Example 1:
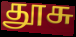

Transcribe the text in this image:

தூசு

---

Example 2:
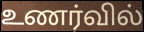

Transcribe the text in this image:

உணர்வில்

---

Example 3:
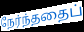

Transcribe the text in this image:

நேர்ந்ததைப்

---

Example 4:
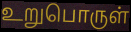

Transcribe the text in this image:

உறுபொருள்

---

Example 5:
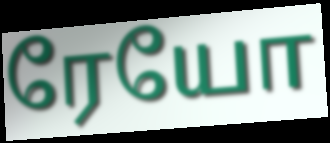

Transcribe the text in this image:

ரேயோ